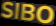
SIBO